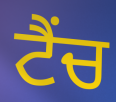
ਟੈਂਚ